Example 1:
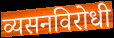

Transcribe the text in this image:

व्यसनविरोधी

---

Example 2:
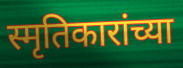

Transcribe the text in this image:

स्मृतिकारांच्या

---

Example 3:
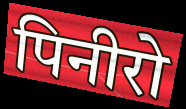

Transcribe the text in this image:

पिनीरो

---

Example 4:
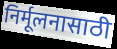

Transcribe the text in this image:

निर्मूलनासाठी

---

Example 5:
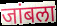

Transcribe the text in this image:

जांबला